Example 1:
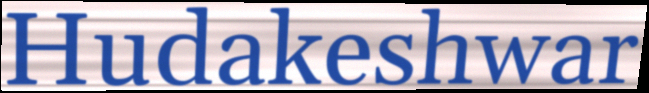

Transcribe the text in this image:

Hudakeshwar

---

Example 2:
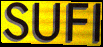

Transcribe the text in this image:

SUFI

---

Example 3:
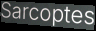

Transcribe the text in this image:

Sarcoptes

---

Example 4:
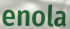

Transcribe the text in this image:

enola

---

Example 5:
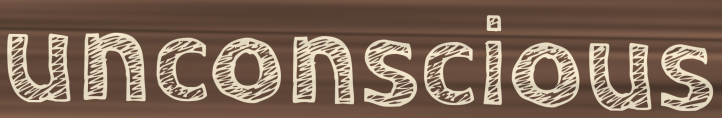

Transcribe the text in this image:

unconscious